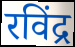
रविंद्र